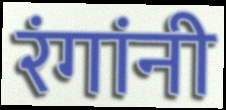
रंगांनी